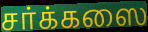
சர்க்கஸை